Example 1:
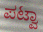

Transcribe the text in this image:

ಪಟ್ವಾ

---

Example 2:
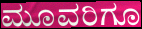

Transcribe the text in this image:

ಮೂವರಿಗೂ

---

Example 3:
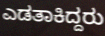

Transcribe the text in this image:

ಎಡತಾಕಿದ್ದರು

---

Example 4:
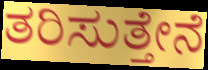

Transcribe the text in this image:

ತರಿಸುತ್ತೇನೆ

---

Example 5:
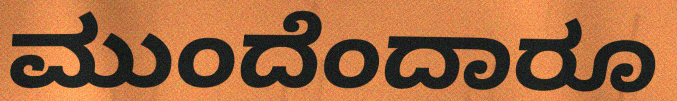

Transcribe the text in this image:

ಮುಂದೆಂದಾರೂ